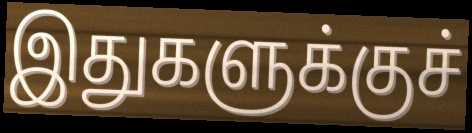
இதுகளுக்குச்